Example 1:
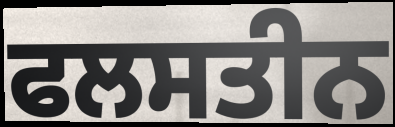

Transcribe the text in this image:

ਫਲਸਤੀਨ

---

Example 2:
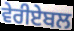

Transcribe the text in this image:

ਵੇਰੀਏਬਲ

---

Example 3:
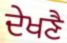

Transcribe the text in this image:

ਦੇਖਣੈ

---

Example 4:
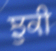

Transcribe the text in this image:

ਝੁਕੀ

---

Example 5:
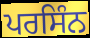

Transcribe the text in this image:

ਪਰਸਿੰਨ